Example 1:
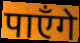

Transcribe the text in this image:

पाऍंगे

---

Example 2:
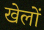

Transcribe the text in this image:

खेलों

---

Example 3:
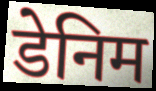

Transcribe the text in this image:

डेनिम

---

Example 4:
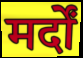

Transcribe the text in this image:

मर्दों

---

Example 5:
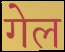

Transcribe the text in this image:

गेल